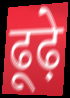
ढूढ़े